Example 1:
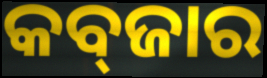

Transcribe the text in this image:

କବ୍‌ଜାର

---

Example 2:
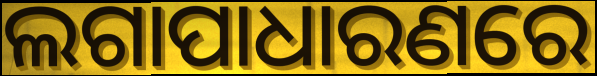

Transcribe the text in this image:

ଲଗାପାଧାରଣରେ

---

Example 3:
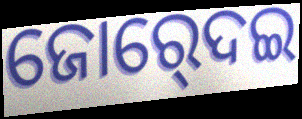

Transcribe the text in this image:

ଜୋର୍‍ଦେଇ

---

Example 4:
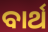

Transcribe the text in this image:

ବାର୍ଥ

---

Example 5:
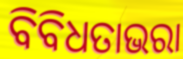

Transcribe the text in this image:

ବିବିଧତାଭରା